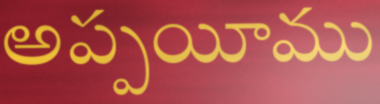
అప్పయీము